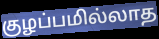
குழப்பமில்லாத